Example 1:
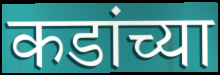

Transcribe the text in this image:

कडांच्या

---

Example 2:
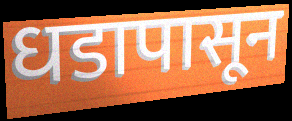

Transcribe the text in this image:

धडापासून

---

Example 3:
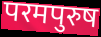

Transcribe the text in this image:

परमपुरुष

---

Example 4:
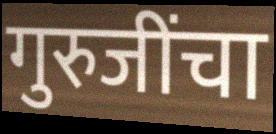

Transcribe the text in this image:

गुरुजींचा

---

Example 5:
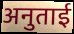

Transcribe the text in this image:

अनुताई